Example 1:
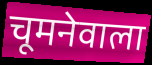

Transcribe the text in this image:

चूमनेवाला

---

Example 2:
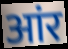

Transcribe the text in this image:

आंर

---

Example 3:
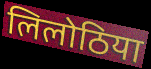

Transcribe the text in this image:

लिलोठिया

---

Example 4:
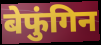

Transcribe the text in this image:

बेफुंगिन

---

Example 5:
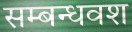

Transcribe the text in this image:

सम्बन्धवश